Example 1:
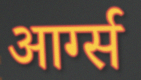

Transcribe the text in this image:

आर्ग्स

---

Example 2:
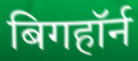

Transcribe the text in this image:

बिगहॉर्न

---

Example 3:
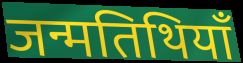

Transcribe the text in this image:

जन्मतिथियाँ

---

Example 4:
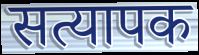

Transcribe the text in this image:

सत्यापक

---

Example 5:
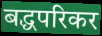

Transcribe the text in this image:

बद्धपरिकर